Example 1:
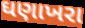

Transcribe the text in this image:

ઘણાખરા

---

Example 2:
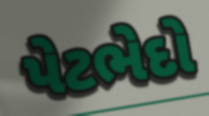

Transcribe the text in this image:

પેટભેદો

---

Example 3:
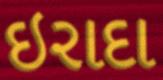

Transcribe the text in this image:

ઇરાદા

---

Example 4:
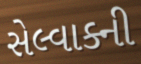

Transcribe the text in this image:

સેલ્વાક્ની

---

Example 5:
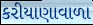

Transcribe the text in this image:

કરીયાણાવાળા